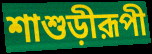
শাশুড়ীরূপী